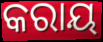
କରାୟ